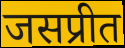
जसप्रीत